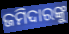
ଜମିଦାରଙ୍କୁ